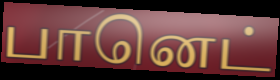
பானெட்